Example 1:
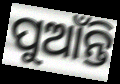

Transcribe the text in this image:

ପୁଆଁନ୍ତି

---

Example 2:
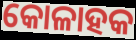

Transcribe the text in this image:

କୋଳାହକ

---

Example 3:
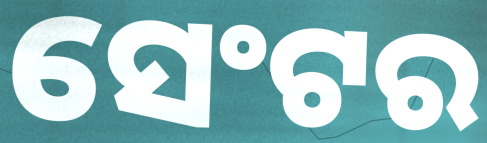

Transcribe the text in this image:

ସେଂଟର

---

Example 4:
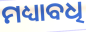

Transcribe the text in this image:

ମଧ୍ୟାବଧି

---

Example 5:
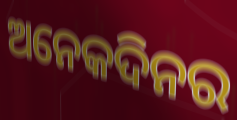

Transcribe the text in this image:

ଅନେକଦିନର